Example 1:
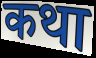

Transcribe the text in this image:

कथा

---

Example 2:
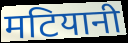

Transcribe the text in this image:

मटियानी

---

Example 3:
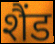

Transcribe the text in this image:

शैंड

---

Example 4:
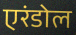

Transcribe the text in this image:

एरंडोल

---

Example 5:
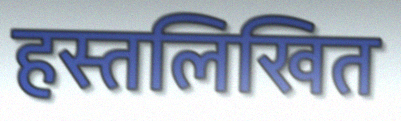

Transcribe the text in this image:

हस्तलिखित